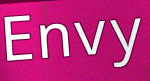
Envy